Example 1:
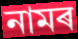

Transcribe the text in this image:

নামৰ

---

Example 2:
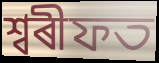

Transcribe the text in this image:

শ্বৰীফত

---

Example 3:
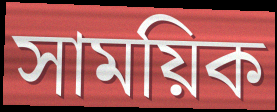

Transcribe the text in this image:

সাময়িক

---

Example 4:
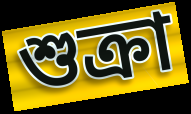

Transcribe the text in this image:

শুক্ৰা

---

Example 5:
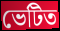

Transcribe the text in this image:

ভেটিত